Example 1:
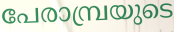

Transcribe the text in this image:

പേരാമ്പ്രയുടെ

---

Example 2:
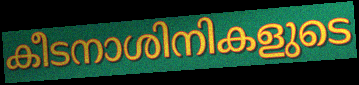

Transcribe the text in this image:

കീടനാശിനികളുടെ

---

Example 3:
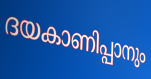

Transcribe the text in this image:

ദയകാണിപ്പാനും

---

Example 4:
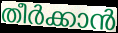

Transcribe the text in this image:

തീർക്കാൻ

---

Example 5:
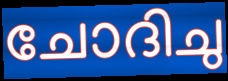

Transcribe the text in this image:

ചോദിചു